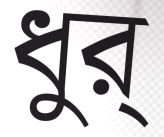
ধুর্